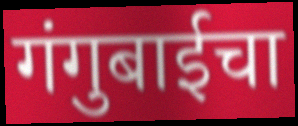
गंगुबाईचा